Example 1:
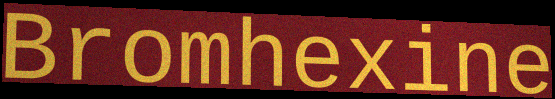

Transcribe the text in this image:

Bromhexine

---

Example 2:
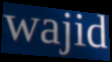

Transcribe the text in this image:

wajid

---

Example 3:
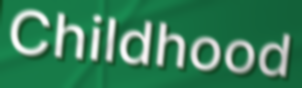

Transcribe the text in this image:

Childhood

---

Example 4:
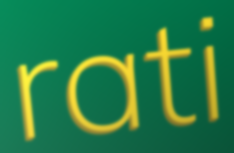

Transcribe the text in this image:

rati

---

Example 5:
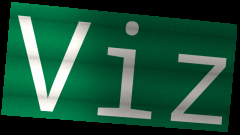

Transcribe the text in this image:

Viz